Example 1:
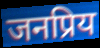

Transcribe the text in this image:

जनप्रिय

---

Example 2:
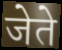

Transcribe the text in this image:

जेते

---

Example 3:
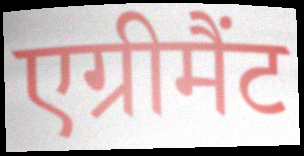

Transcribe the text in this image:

एग्रीमैंट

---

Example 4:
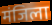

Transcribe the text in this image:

मंजिला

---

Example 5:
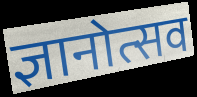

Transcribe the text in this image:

ज्ञानोत्सव